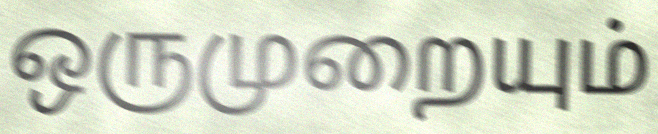
ஒருமுறையும்